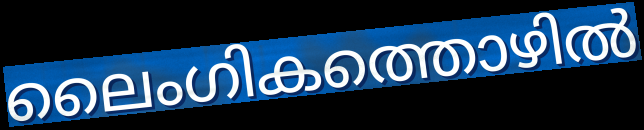
ലൈംഗികത്തൊഴിൽ